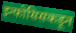
इन्फोसिसकडून